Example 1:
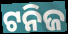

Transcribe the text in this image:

ଟନିଜ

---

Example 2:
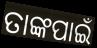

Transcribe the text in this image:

ତାଙ୍କପାଇଁ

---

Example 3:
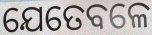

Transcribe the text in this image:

ଯେତେବଳେ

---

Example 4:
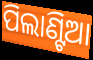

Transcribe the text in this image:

ପିଲାଣ୍ଟିଆ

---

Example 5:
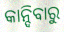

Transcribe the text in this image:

କାନ୍ଦିବାରୁ